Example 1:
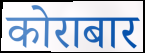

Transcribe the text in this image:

कोराबार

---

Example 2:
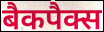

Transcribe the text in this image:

बैकपैक्स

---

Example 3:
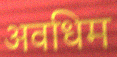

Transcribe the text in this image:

अवधिम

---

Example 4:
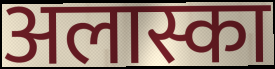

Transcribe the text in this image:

अलास्का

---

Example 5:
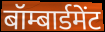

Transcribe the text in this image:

बॉम्बार्डमेंट